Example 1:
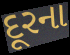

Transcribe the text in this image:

દૂરના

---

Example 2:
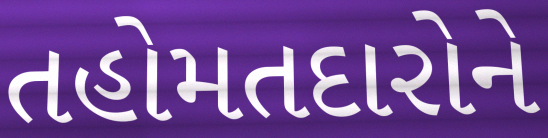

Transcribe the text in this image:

તહોમતદારોને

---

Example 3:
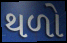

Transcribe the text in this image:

થળો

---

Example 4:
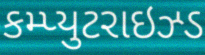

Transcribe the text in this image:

કમ્પ્યુટરાઇઝ્ડ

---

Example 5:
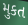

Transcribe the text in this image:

મુકત